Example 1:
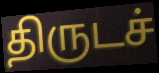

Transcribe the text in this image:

திருடச்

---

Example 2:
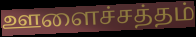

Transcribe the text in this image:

ஊளைச்சத்தம்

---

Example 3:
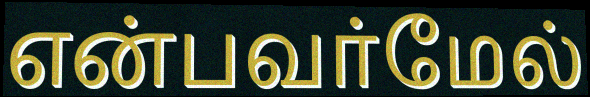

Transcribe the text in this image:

என்பவர்மேல்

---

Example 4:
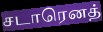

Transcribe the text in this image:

சடாரெனத்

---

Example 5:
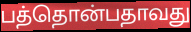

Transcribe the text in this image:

பத்தொன்பதாவது